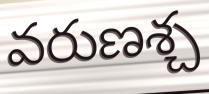
వరుణశ్చ